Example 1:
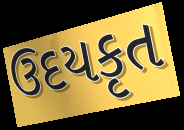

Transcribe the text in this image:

ઉદયકૃત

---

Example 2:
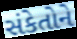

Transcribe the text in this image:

સંકેતોને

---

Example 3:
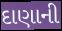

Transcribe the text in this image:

દાણાની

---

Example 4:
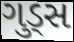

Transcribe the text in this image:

ગુડ્સ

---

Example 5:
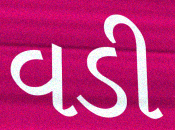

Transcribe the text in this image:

વડી